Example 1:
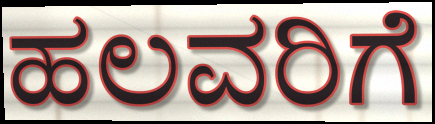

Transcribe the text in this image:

ಹಲವರಿಗೆ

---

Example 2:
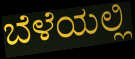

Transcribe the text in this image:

ಬೆಳೆಯಲ್ಲಿ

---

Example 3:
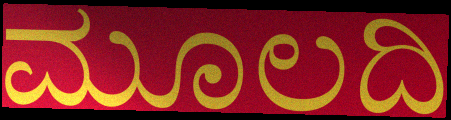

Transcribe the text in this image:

ಮೂಲದಿ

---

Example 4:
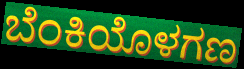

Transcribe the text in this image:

ಬೆಂಕಿಯೊಳಗಣ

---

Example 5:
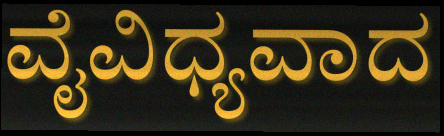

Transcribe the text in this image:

ವೈವಿಧ್ಯವಾದ